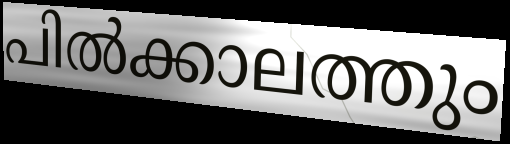
പിൽക്കാലത്തും